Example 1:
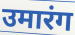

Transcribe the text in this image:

उमारंग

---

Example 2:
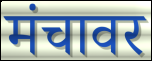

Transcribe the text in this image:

मंचावर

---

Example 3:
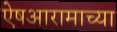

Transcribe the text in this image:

ऐषआरामाच्या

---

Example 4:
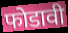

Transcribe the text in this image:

फोडावी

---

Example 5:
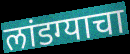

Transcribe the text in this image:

लांडग्याचा